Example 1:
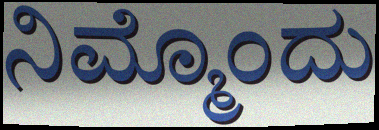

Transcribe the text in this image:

ನಿಮ್ಮೊಂದು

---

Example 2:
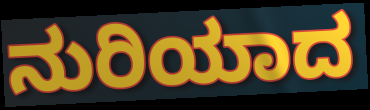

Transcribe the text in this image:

ನುರಿಯಾದ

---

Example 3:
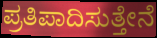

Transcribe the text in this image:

ಪ್ರತಿಪಾದಿಸುತ್ತೇನೆ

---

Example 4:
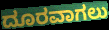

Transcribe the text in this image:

ದೂರವಾಗಲು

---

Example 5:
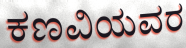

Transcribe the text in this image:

ಕಣವಿಯವರ